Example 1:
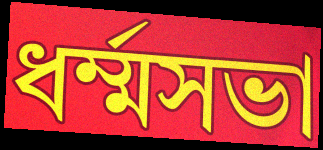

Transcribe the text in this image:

ধর্ম্মসভা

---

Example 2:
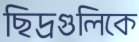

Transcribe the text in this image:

ছিদ্রগুলিকে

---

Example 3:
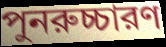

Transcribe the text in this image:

পুনরুচ্চারণ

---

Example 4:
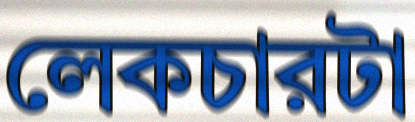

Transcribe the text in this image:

লেকচারটা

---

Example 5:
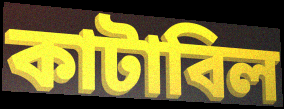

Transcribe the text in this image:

কাটাবিল